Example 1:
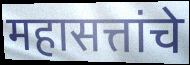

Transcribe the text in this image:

महासत्तांचे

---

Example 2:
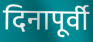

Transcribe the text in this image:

दिनापूर्वी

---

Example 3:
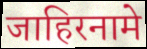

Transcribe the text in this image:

जाहिरनामे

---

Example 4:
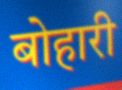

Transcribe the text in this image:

बोहारी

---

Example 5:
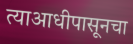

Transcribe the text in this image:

त्याआधीपासूनचा